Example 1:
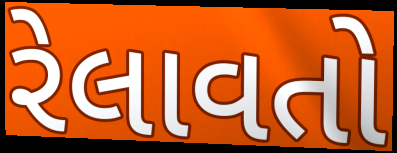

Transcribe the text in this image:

રેલાવતો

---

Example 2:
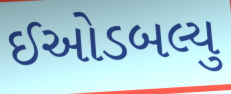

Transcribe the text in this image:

ઈઓડબલ્યુ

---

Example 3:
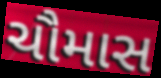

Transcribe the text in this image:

ચૌમાસ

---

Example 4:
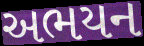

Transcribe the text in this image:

અભયન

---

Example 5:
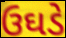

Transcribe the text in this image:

ઉઘડે